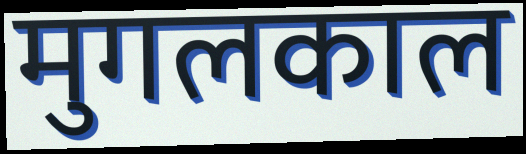
मुगलकाल